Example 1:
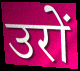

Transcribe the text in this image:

उरों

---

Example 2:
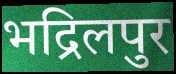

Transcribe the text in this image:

भद्रिलपुर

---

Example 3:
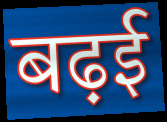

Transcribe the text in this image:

बढ़ई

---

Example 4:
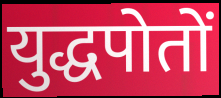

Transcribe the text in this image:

युद्धपोतों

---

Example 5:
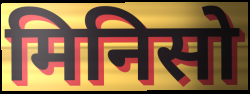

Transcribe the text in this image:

मिनिसो